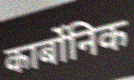
कार्बोनिक